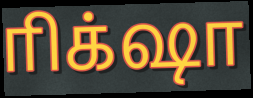
ரிக்‌ஷா